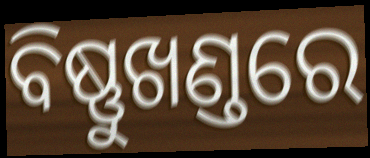
ବିଷ୍ଣୁଖଣ୍ଡରେ